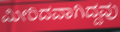
ಮೀರಿದವಾಗಿದ್ದವು